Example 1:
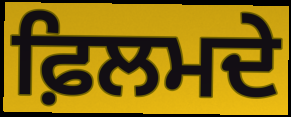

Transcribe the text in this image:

ਫ਼ਿਲਮਦੇ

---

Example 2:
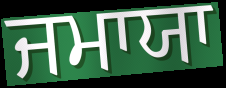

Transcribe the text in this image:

ਜਮਾਯਾ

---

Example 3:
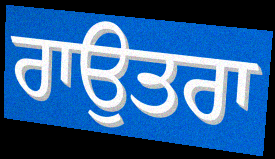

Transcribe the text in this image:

ਰਾਉਤਰਾ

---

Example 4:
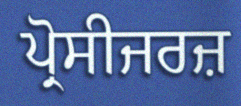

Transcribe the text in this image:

ਪ੍ਰੋਸੀਜਰਜ਼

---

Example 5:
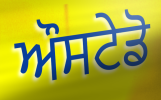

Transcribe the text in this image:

ਔਸਟੇਡੋ